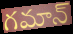
గమాన్